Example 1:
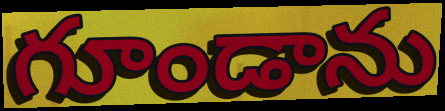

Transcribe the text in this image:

గూండాను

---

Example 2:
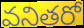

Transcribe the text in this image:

వనితరో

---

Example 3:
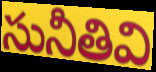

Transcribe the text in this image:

సునీతివి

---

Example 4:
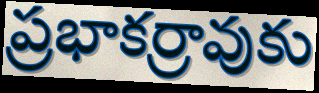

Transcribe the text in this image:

ప్రభాకర్రావుకు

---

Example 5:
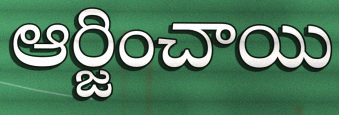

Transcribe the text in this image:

ఆర్జించాయి